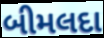
બીમલદા